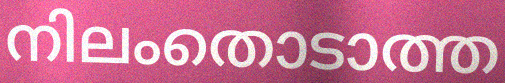
നിലംതൊടാത്ത